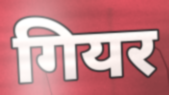
गियर